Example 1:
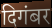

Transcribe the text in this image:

दिगंबर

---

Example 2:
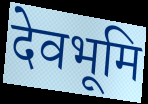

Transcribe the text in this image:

देवभूमि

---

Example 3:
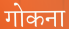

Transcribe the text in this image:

गोकना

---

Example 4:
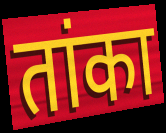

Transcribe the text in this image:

तांका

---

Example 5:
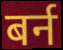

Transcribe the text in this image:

बर्न